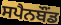
ਸਪੈਨਬੌਂਡ